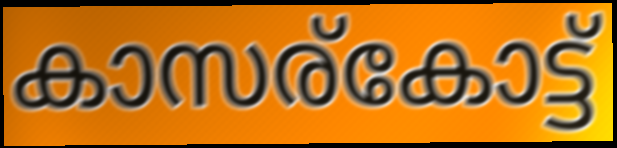
കാസര്കോട്ട്